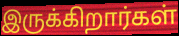
இருக்கிறார்கள்